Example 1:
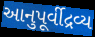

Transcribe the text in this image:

આનુપૂર્વીદ્રવ્ય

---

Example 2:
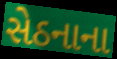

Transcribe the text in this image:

સેઠનાના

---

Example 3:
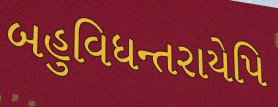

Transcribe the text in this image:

બહુવિધન્તરાયેપિ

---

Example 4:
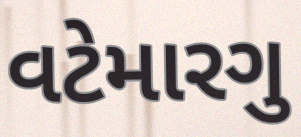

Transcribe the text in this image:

વટેમારગુ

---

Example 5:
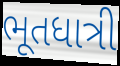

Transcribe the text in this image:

ભૂતધાત્રી